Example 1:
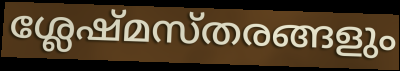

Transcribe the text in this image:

ശ്ലേഷ്മസ്തരങ്ങളും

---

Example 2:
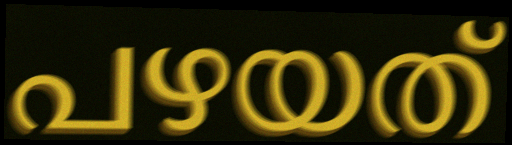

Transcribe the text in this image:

പഴയത്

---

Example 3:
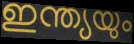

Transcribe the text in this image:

ഇന്ത്യയും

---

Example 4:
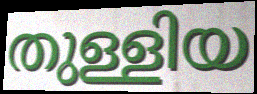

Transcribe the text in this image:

തുള്ളിയ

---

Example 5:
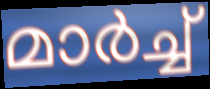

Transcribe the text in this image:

മാർച്ച്